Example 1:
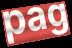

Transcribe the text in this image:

pag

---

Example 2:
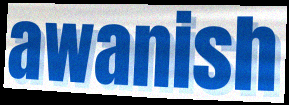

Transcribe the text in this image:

awanish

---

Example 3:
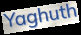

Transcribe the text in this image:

Yaghuth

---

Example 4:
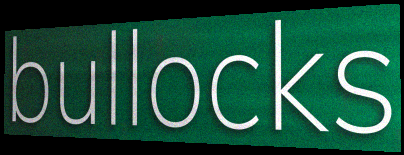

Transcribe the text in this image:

bullocks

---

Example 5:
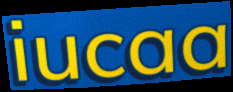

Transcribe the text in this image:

iucaa